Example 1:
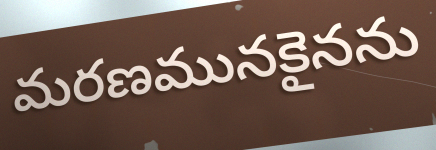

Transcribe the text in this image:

మరణమునకైనను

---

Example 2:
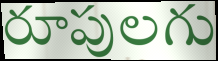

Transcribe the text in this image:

రూపులగు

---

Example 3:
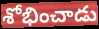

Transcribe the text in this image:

శోభించాడు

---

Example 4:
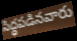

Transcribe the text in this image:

సిద్ధపడినవారు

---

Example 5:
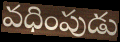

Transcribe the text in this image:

వధింపుడు